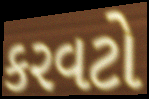
કરવટો